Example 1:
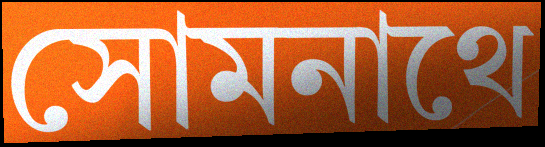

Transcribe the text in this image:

সোমনাথে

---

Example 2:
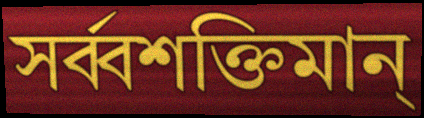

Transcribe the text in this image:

সর্ব্বশক্তিমান্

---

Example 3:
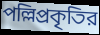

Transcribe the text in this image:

পল্লিপ্রকৃতির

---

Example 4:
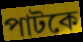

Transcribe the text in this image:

পাটকে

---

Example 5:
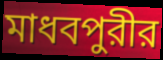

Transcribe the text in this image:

মাধবপুরীর